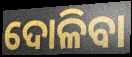
ଦୋଳିବା